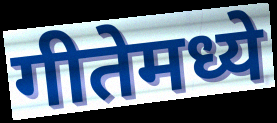
गीतेमध्ये